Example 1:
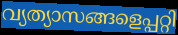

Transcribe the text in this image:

വ്യത്യാസങ്ങളെപ്പറ്റി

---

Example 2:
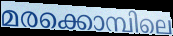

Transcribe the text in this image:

മരക്കൊമ്പിലെ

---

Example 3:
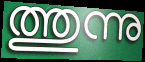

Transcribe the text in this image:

ത്തുന്നു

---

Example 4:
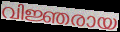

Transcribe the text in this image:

വിജ്ഞരായ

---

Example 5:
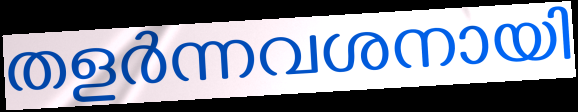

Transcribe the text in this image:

തളർന്നവശനായി